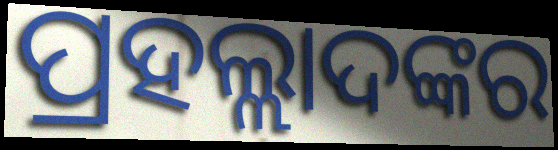
ପ୍ରହଲ୍ଲାଦଙ୍କର